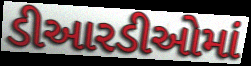
ડીઆરડીઓમાં